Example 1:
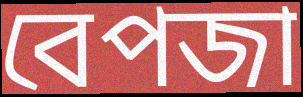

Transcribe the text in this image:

বেপজা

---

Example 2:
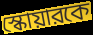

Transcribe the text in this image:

স্কোয়ারকে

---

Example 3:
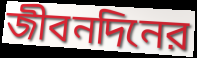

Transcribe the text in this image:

জীবনদিনের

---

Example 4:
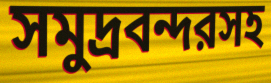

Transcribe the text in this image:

সমুদ্রবন্দরসহ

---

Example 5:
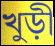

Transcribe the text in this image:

খুড়ী